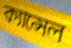
ক্যান্সেল